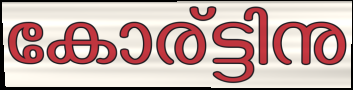
കോര്ട്ടിനു